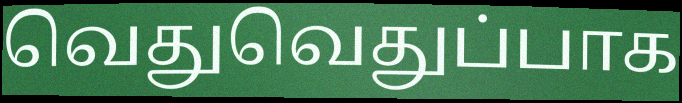
வெதுவெதுப்பாக